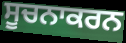
ਸੂਚਨਾਕਰਨ